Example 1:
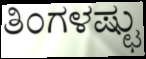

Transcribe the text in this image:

ತಿಂಗಳಷ್ಟು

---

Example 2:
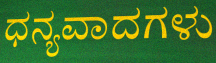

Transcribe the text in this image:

ಧನ್ಯವಾದಗಳು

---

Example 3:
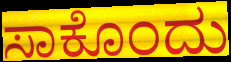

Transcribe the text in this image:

ಸಾಕೊಂದು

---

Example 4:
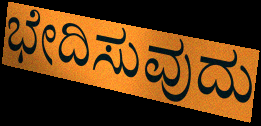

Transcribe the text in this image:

ಭೇದಿಸುವುದು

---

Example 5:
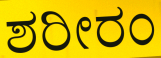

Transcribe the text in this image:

ಶರೀರಂ